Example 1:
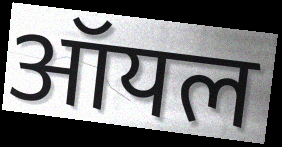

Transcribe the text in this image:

ऑयल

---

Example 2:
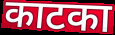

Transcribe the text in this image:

काटका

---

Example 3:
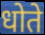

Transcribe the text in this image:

धोते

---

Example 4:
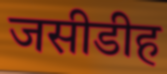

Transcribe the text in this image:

जसीडीह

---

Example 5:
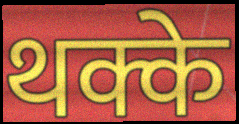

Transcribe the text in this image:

थक्के